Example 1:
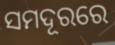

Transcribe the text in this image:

ସମଦୂରରେ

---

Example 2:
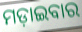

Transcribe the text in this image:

ମଡ଼ାଇବାର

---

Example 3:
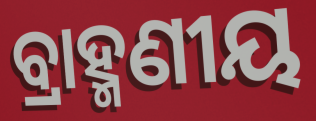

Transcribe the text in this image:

ବ୍ରାହ୍ମଣୀୟ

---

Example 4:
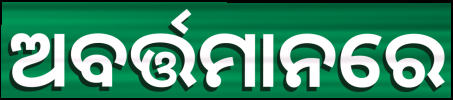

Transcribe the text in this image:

ଅବର୍ତ୍ତମାନରେ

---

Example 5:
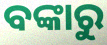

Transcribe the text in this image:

ବଙ୍କାରୁ